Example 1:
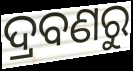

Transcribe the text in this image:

ଦ୍ରବଣରୁ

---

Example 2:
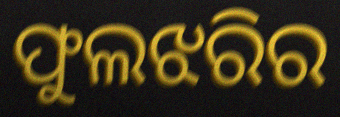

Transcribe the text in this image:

ଫୁଲଝରିର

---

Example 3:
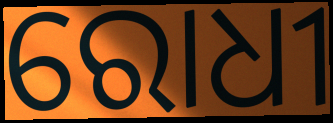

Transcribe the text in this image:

ରୋଧୀ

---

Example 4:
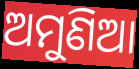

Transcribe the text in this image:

ଅମୁଣିଆ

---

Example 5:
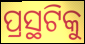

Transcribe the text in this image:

ପ୍ରସ୍ଥଟିକୁ